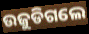
ଉଜୁଡିଗଲେ